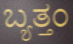
ಬ್ಯತ್ತಂ